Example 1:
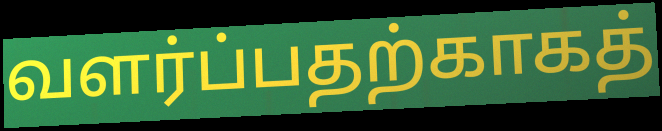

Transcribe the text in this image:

வளர்ப்பதற்காகத்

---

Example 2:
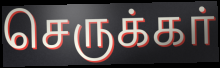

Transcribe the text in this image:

செருக்கர்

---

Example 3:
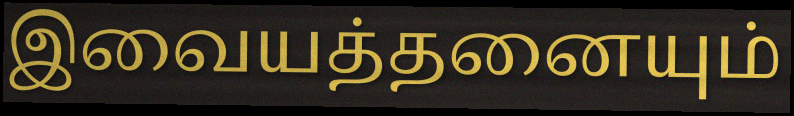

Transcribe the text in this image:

இவையத்தனையும்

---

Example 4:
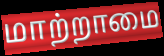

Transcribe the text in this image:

மாற்றாமை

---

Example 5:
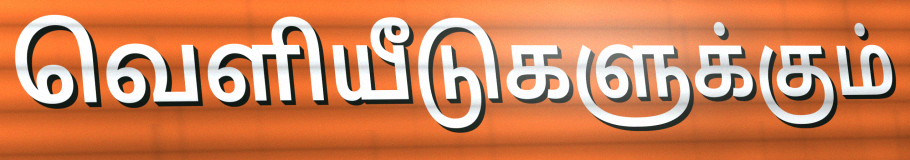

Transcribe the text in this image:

வெளியீடுகளுக்கும்